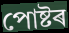
পোষ্টৰ